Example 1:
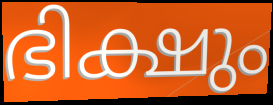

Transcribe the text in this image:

ഭിക്ഷും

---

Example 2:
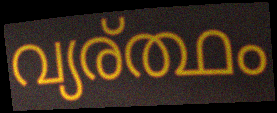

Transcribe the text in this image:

വ്യര്ത്ഥം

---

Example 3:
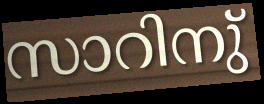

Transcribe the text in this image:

സാറിനു്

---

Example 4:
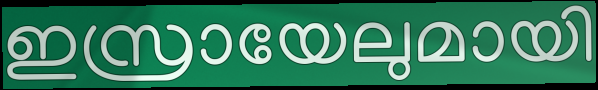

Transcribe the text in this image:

ഇസ്രായേലുമായി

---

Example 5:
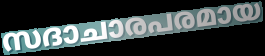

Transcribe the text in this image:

സദാചാരപരമായ